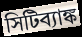
সিটিব্যাঙ্ক